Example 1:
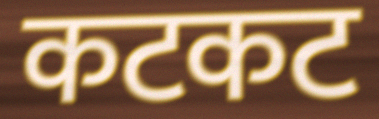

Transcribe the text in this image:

कटकट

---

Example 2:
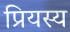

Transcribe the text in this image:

प्रियस्य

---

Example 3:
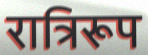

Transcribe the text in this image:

रात्रिरूप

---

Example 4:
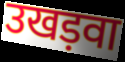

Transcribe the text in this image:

उखड़वा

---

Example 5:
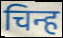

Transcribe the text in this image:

चिन्ह